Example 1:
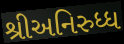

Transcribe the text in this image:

શ્રીઅનિરુધ્ધ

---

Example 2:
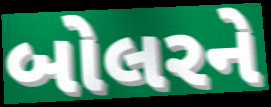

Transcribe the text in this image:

બોલરને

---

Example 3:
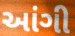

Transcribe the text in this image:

આંગી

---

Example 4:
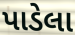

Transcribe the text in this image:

પાડેલા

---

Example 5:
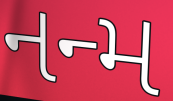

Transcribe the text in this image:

નન્મ